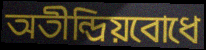
অতীন্দ্রিয়বোধে